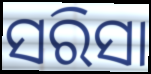
ସରିସା